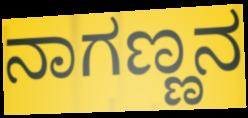
ನಾಗಣ್ಣನ